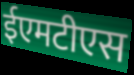
ईएमटीएस